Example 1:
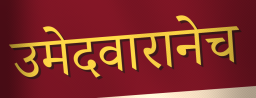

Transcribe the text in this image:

उमेदवारानेच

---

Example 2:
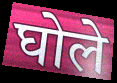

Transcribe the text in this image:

घोले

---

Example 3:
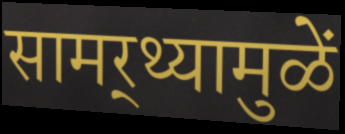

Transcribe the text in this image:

सामर्थ्यामुळें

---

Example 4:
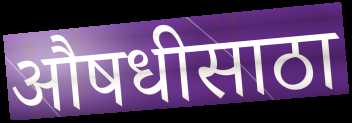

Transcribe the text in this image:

औषधीसाठा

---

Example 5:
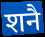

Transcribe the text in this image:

शनै